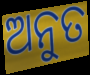
ଅନୁତ